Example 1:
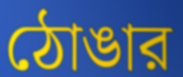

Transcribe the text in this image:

ঠোঙার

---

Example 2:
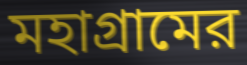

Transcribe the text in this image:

মহাগ্রামের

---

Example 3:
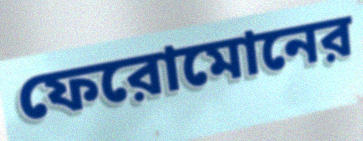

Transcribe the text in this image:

ফেরোমোনের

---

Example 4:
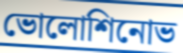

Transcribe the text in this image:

ভোলোশিনোভ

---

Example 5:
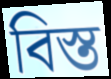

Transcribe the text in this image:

বিস্ত